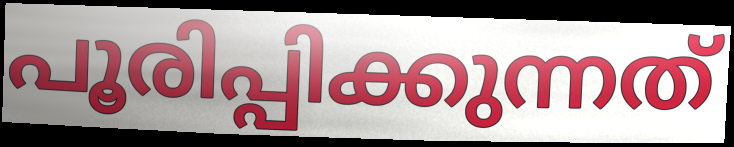
പൂരിപ്പിക്കുന്നത്